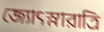
জ্যোৎস্নারাত্রি